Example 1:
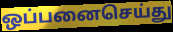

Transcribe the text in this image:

ஒப்பனைசெய்து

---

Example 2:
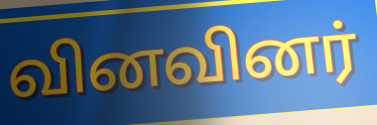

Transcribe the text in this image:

வினவினர்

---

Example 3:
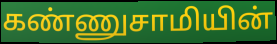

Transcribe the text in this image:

கண்ணுசாமியின்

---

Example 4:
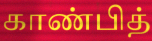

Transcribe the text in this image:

காண்பித்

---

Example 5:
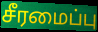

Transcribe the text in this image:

சீரமைப்பு